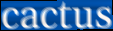
cactus